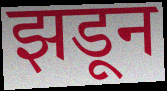
झडून